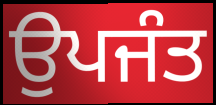
ਉਪਜੰਤ